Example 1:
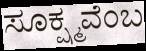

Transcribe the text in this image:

ಸೂಕ್ಷ್ಮವೆಂಬ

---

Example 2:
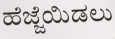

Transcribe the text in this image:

ಹೆಜ್ಜೆಯಿಡಲು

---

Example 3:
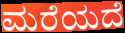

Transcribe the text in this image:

ಮರೆಯದೆ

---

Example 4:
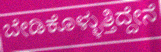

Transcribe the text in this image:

ಬೇಡಿಕೊಳ್ಳುತ್ತಿದ್ದೇನೆ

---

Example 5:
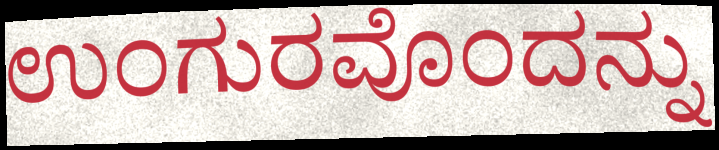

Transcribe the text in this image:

ಉಂಗುರವೊಂದನ್ನು